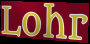
Lohr